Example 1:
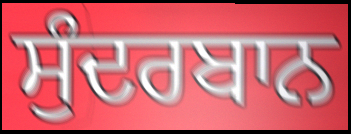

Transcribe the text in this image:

ਸੁੰਦਰਬਾਨ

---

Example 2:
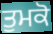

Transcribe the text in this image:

ਤੁਮਕੋ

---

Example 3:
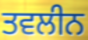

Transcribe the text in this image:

ਤਵਲੀਨ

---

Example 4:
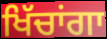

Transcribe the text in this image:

ਖਿੱਚਾਂਗਾ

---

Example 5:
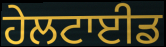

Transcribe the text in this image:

ਹੇਲਟਾਈਡ